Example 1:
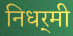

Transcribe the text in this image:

निधर्मी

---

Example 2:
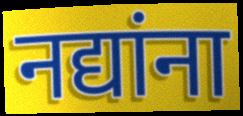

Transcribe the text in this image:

नद्यांना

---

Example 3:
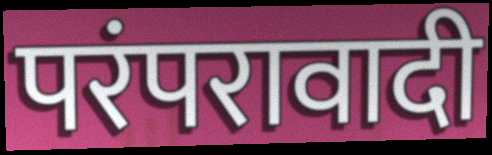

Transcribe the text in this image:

परंपरावादी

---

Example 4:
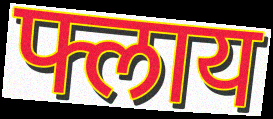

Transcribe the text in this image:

फ्लाय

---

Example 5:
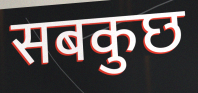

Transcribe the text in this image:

सबकुछ